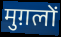
मुग़लों